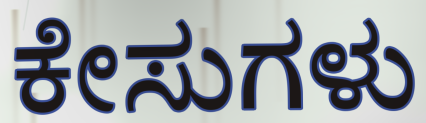
ಕೇಸುಗಳು